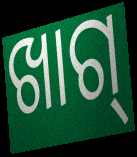
ଖାଗ୍